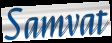
Samvat